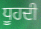
ਧੂਹਦੀ